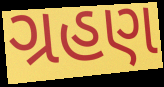
ગ્રહણ